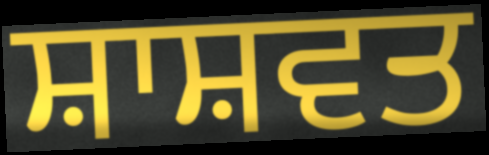
ਸ਼ਾਸ਼ਵਤ